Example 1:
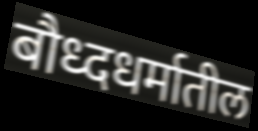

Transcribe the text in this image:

बौध्दधर्मातील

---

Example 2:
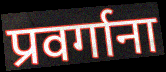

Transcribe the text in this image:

प्रवर्गाना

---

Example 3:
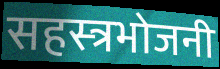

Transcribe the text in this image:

सहस्त्रभोजनी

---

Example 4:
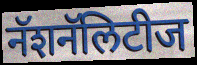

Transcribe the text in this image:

नॅशनॅलिटीज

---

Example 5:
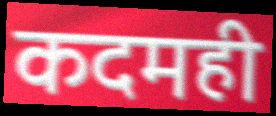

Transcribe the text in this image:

कदमही